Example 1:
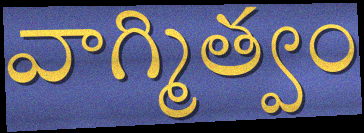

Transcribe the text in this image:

వాగ్మిత్వం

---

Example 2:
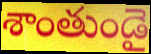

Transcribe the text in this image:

శాంతుండై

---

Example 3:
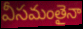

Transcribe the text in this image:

వీసమంతైనా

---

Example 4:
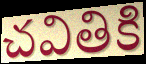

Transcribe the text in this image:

చవితికి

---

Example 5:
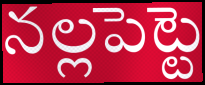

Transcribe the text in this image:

నల్లపెట్టె